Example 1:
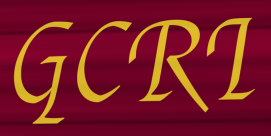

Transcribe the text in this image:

GCRI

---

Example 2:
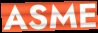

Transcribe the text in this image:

ASME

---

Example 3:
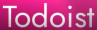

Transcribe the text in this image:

Todoist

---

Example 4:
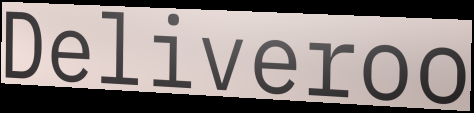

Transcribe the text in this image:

Deliveroo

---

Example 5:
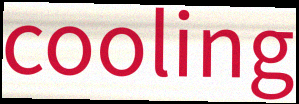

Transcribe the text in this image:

cooling